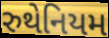
રુથેનિયમ